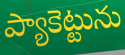
ప్యాకెట్టును